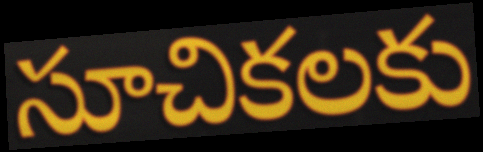
సూచికలకు